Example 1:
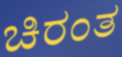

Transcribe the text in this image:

ಚಿರಂತ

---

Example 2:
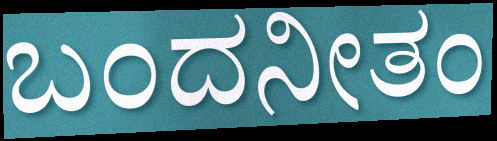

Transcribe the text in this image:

ಬಂದನೀತಂ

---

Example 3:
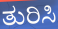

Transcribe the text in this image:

ತುರಿಸಿ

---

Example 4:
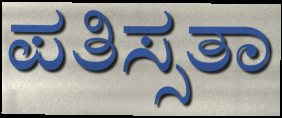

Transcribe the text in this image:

ಪತಿಸ್ಸತಾ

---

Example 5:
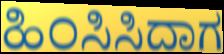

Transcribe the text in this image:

ಹಿಂಸಿಸಿದಾಗ